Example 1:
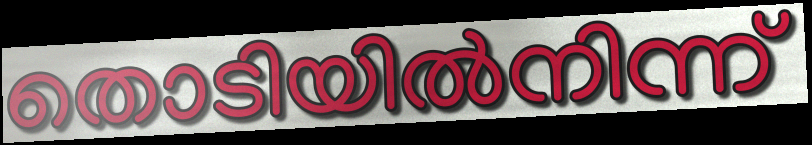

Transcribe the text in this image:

തൊടിയിൽനിന്ന്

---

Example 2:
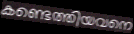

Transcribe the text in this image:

കണ്ടെത്തിയവനെ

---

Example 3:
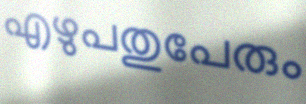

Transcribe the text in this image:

എഴുപതുപേരും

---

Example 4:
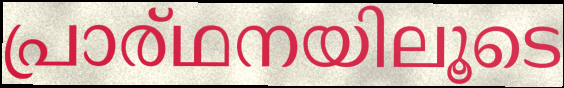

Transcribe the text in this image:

പ്രാര്ഥനയിലൂടെ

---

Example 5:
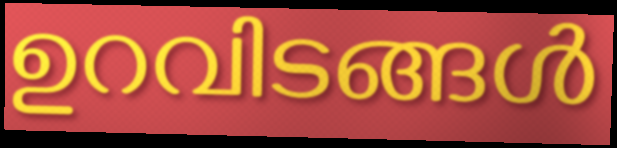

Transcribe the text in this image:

ഉറവിടങ്ങൾ